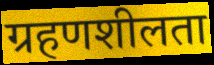
ग्रहणशीलता